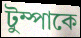
টুম্পাকে